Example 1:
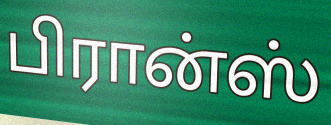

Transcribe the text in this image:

பிரான்ஸ்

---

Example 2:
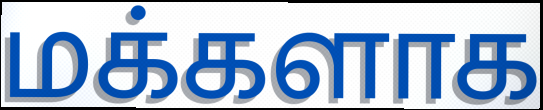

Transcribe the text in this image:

மக்களாக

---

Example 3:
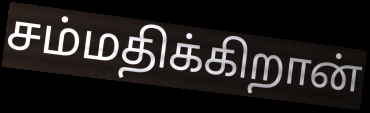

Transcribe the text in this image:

சம்மதிக்கிறான்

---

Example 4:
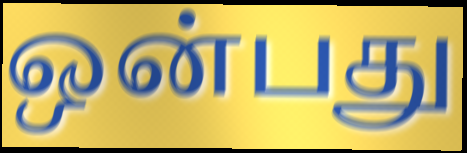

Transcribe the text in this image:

ஒன்பது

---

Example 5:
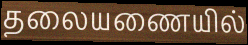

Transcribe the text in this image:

தலையணையில்